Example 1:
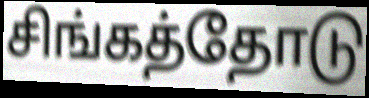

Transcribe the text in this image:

சிங்கத்தோடு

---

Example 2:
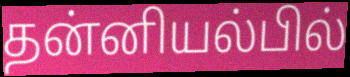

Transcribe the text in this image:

தன்னியல்பில்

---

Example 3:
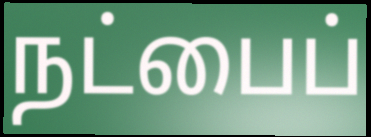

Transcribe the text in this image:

நட்பைப்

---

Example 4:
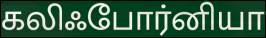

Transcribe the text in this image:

கலிஃபோர்னியா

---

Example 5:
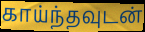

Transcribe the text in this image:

காய்ந்தவுடன்